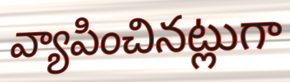
వ్యాపించినట్లుగా